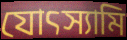
যোৎস্যামি